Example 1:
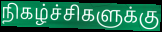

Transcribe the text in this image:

நிகழ்ச்சிகளுக்கு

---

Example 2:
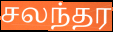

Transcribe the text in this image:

சலந்தர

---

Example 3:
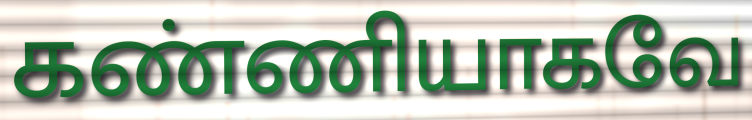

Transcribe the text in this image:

கண்ணியாகவே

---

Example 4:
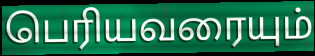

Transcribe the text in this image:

பெரியவரையும்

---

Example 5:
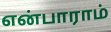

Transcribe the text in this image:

என்பாராம்